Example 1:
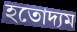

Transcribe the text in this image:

হতোদ্যম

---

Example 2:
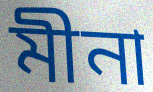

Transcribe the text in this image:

মীনা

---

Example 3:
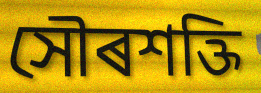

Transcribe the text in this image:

সৌৰশক্তি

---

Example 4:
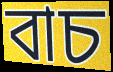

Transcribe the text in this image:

বাচ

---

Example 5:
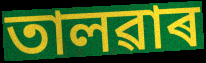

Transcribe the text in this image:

তালৱাৰ